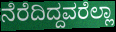
ನೆರೆದಿದ್ದವರೆಲ್ಲಾ